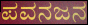
ಪವನಜನ